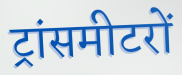
ट्रांसमीटरों